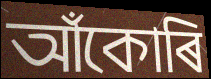
আঁকোৰি